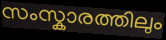
സംസ്കാരത്തിലും